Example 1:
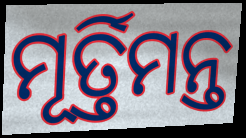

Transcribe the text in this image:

ମୂର୍ତ୍ତିମନ୍ତ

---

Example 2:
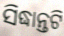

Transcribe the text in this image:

ସିଦ୍ଧାନ୍ତଟି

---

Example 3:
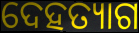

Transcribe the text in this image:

ଦେହତ୍ୟାଗ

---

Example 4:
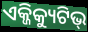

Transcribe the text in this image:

ଏକ୍ଜିକ୍ୟୁଟିଭ୍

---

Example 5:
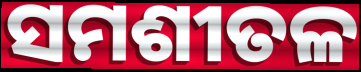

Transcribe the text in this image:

ସମଶୀତଳ